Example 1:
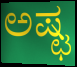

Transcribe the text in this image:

ಅಷ್ಟ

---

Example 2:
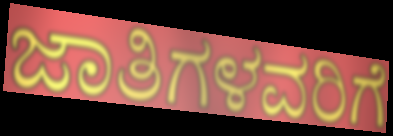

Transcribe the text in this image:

ಜಾತಿಗಳವರಿಗೆ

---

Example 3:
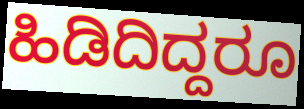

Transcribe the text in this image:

ಹಿಡಿದಿದ್ದರೂ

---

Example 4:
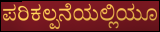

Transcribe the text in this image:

ಪರಿಕಲ್ಪನೆಯಲ್ಲಿಯೂ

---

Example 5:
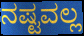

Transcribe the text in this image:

ನಷ್ಟವಲ್ಲ